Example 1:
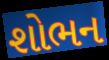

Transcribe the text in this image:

શોભન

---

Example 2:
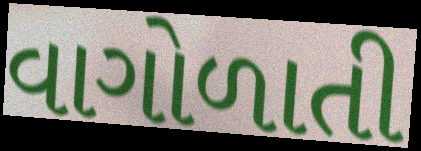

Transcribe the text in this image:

વાગોળાતી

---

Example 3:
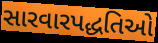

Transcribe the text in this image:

સારવારપદ્ધતિઓ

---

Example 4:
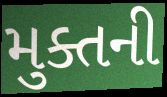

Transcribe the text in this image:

મુક્તની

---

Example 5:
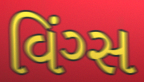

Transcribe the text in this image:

વિંગ્સ